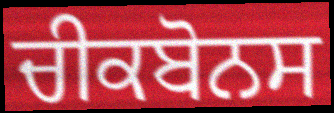
ਚੀਕਬੋਨਸ